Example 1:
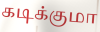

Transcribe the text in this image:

கடிக்குமா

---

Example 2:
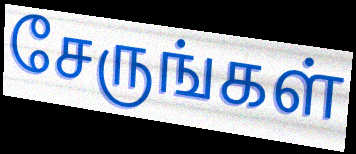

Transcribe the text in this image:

சேருங்கள்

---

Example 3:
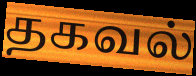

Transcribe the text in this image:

தகவல்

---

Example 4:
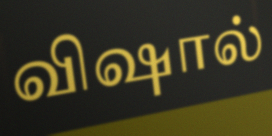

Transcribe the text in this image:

விஷால்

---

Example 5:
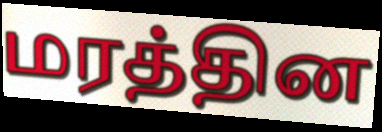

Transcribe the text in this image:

மரத்தின